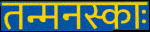
तन्मनस्काः